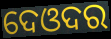
ଦେଓଦର